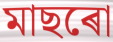
মাছৰো